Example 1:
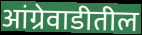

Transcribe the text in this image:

आंग्रेवाडीतील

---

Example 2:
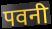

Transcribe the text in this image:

पवनी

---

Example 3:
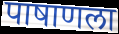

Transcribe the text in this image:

पाषाणला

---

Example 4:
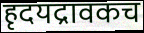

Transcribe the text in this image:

हृदयद्रावकच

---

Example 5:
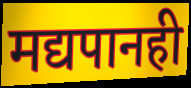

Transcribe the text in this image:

मद्यपानही